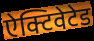
ऐक्टिवेटेड